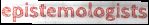
epistemologists